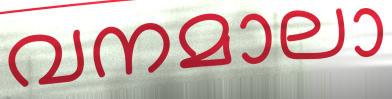
വനമാലാ